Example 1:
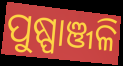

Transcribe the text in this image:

ପୁଷ୍ପାଞ୍ଜଳି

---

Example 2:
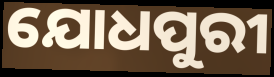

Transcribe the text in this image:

ଯୋଧପୁରୀ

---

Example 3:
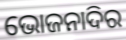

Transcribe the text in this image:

ଭୋଜନାଦିର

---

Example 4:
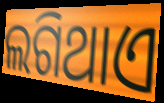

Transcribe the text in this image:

ଲଗିଥାଏ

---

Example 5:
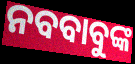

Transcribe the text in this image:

ନବବାବୁଙ୍କ